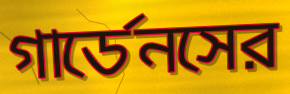
গার্ডেনসের